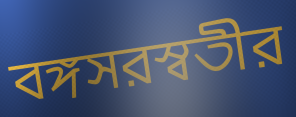
বঙ্গসরস্বতীর